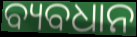
ବ୍ୟବଧାନ